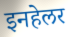
इनहेलर